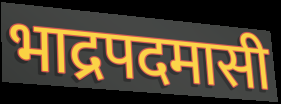
भाद्रपदमासी